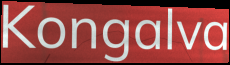
Kongalva